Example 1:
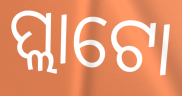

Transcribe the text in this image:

ପ୍ଲାଟୋ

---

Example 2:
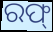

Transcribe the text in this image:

ରଫ୍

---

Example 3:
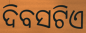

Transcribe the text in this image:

ଦିବସଟିଏ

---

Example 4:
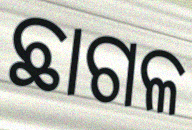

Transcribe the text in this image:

ଛାଗଳ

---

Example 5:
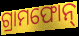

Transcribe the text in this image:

ଗ୍ରାମଫୋନ୍